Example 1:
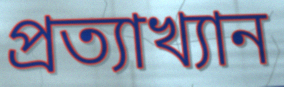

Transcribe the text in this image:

প্ৰত্যাখ্যান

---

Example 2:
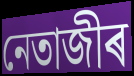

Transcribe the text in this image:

নেতাজীৰ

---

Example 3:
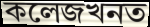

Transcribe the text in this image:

কলেজখনত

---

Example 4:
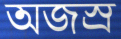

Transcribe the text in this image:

অজস্ৰ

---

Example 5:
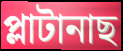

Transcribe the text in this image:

প্লাটানাছ